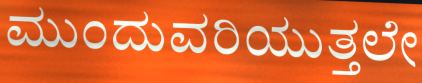
ಮುಂದುವರಿಯುತ್ತಲೇ